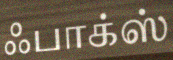
ஃபாக்ஸ்